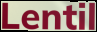
Lentil